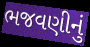
ભજવણીનું